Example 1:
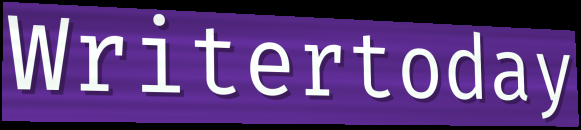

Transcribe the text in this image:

Writertoday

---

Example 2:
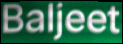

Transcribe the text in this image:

Baljeet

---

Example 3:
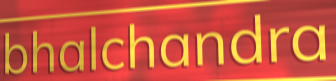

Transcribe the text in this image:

bhalchandra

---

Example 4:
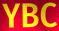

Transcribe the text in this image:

YBC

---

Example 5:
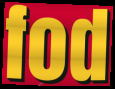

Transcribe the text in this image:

fod